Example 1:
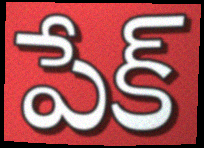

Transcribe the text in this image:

పేక్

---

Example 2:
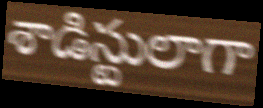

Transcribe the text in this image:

శాడిస్టులాగా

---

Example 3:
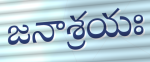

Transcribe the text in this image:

జనాశ్రయః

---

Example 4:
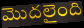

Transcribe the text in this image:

మొదలైంది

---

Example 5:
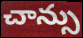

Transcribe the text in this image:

చాన్సు